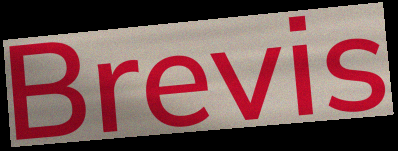
Brevis